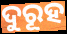
ଦୁରୂହ